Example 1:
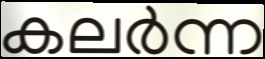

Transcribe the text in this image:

കലർന്ന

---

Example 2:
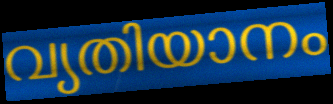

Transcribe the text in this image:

വ്യതിയാനം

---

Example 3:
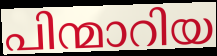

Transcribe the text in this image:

പിന്മാറിയ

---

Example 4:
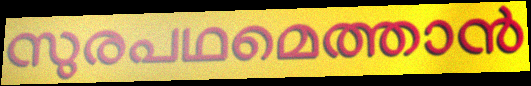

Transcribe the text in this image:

സുരപഥമെത്താൻ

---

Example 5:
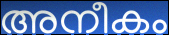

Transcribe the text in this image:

അനീകം